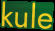
kule